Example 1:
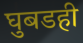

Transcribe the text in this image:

घुबडही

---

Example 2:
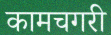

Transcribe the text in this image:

कामचगरी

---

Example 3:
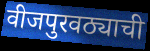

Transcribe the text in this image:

वीजपुरवठ्याची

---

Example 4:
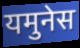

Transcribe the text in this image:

यमुनेस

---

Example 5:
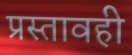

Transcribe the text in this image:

प्रस्तावही